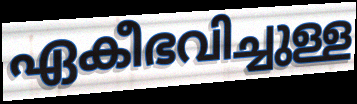
ഏകീഭവിച്ചുള്ള